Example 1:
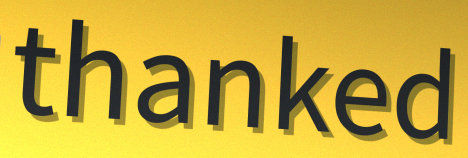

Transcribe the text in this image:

thanked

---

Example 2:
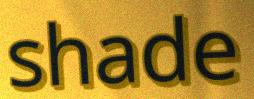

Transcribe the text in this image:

shade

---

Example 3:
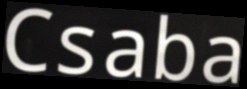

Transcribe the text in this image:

Csaba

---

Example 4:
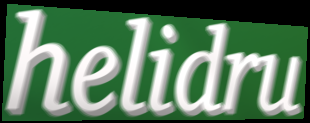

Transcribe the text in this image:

helidru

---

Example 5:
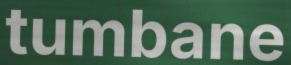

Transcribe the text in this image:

tumbane